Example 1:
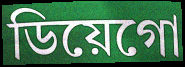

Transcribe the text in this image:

ডিয়েগো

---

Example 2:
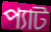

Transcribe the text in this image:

প্যাট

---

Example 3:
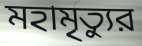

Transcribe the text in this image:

মহামৃত্যুর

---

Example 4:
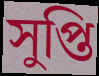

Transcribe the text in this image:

সুপ্তি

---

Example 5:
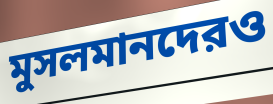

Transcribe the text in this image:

মুসলমানদেরও